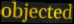
objected